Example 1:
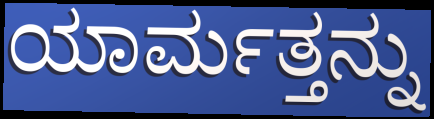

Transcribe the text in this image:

ಯಾರ್ಮತ್ತನ್ನು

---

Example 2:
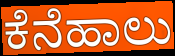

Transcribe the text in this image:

ಕೆನೆಹಾಲು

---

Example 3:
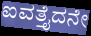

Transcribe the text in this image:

ಐವತ್ತೈದನೇ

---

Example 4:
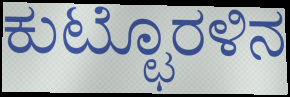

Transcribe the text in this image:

ಕುಟ್ಟೊರಳಿನ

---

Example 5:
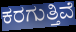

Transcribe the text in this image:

ಕರಗುತ್ತಿವೆ